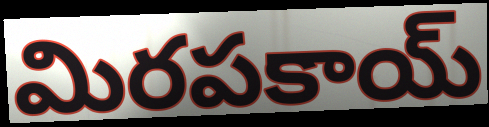
మిరపకాయ్